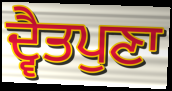
ਦ੍ਵੈਤਪੁਣਾ